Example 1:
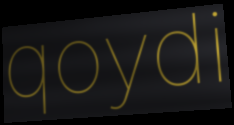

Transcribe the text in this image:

qoydi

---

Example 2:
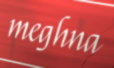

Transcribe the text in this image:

meghna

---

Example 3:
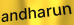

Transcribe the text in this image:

andharun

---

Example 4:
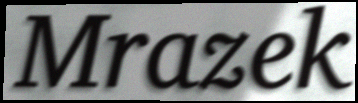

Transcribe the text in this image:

Mrazek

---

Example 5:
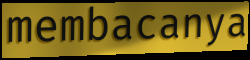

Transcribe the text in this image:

membacanya